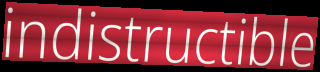
indistructible